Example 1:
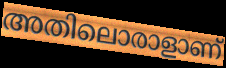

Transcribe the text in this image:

അതിലൊരാളാണ്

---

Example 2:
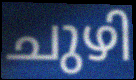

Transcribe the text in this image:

ചുഴി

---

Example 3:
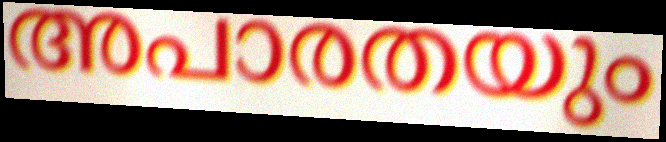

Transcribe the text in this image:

അപാരതയും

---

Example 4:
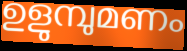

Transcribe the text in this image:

ഉളുമ്പുമണം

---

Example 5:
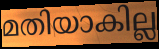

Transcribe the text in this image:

മതിയാകില്ല